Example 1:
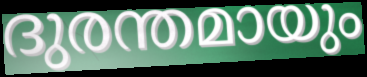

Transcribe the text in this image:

ദുരന്തമായും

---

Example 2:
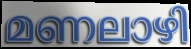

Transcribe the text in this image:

മണലാഴി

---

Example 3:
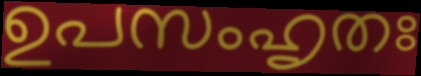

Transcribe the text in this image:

ഉപസംഹൃതഃ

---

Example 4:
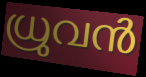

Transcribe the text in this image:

ധ്രുവൻ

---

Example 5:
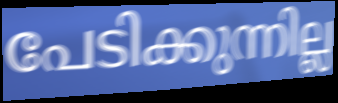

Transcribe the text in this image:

പേടിക്കുന്നില്ല